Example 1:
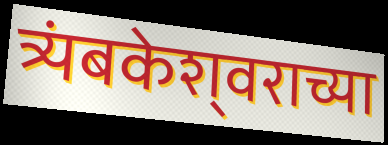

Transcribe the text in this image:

त्र्यंबकेश्वराच्या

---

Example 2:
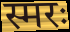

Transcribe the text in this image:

स्मरः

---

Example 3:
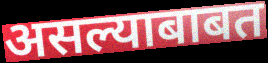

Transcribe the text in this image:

असल्याबाबत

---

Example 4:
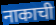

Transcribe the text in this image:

नाकाची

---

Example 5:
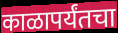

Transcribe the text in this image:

काळापर्यंतचा